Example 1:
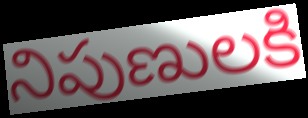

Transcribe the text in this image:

నిపుణులకి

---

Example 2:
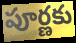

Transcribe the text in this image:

పూర్ణకు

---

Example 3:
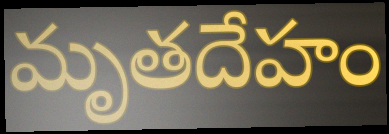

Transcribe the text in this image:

మృతదేహం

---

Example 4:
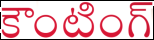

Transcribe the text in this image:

కౌంటింగ్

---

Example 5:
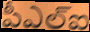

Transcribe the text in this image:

పీఎల్ఐ